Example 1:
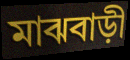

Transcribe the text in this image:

মাঝবাড়ী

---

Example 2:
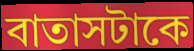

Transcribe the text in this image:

বাতাসটাকে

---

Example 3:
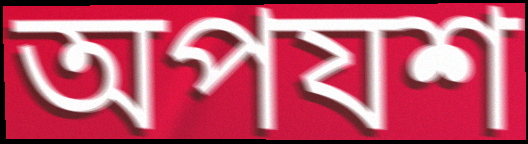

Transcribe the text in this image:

অপযশ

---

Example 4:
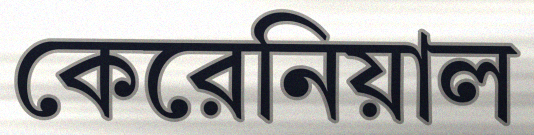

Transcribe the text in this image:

কেরেনিয়াল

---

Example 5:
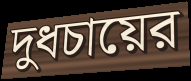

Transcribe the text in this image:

দুধচায়ের